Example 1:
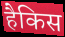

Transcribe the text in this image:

हैकिस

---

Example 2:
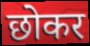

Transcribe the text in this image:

छोकर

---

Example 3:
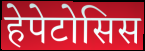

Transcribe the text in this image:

हेपेटोसिस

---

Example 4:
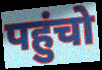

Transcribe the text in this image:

पहुंचो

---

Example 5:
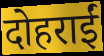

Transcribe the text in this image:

दोहराईं